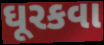
ઘૂરકવા